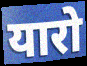
यारो